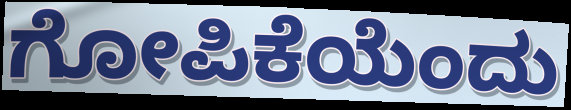
ಗೋಪಿಕೆಯೆಂದು